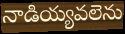
నాడియ్యవలెను